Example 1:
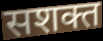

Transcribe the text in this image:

सशक्त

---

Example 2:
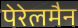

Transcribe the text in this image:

पेरेलमैन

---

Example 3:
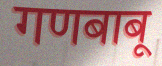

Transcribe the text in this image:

गणबाबू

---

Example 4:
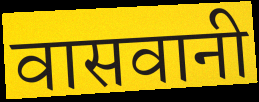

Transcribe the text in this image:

वासवानी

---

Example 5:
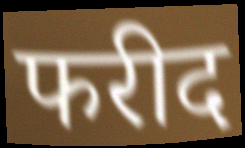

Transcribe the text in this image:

फरीद